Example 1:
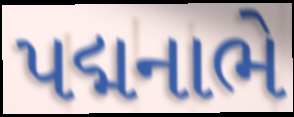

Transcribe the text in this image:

પદ્મનાભે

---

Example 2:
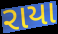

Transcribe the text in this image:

રાયા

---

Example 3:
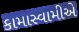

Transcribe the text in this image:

કામાસ્વામીએ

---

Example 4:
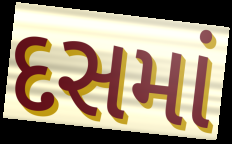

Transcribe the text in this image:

દસમાં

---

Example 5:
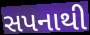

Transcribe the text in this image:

સપનાથી